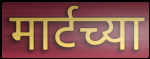
मार्टच्या